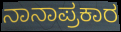
ನಾನಾಪ್ರಕಾರ